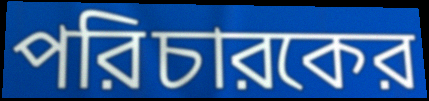
পরিচারকের